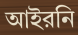
আইরনি